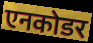
एनकोडर